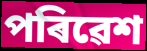
পৰিৱেশ